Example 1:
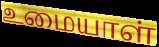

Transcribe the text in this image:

உமையாள்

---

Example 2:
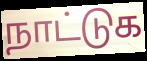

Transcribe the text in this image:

நாட்டுக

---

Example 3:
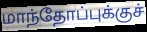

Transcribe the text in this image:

மாந்தோப்புக்குச்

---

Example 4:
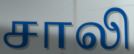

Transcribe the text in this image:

சாலி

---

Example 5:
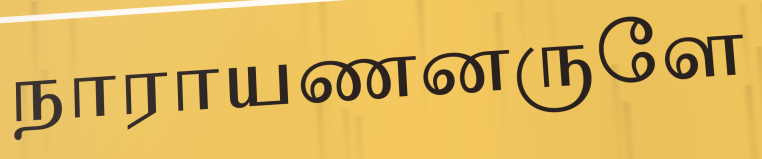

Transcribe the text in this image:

நாராயணனருளே